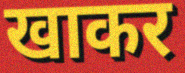
खाकर